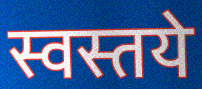
स्वस्तये